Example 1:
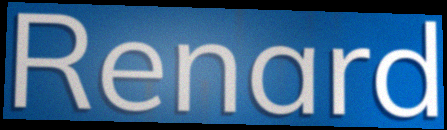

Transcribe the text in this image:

Renard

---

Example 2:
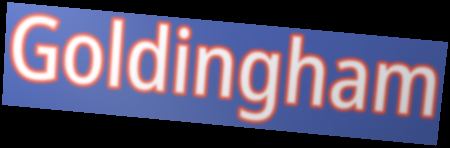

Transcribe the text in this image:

Goldingham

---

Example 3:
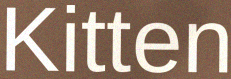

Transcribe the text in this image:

Kitten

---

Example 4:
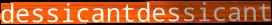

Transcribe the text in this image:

dessicantdessicant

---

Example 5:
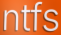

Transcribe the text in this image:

ntfs